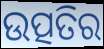
ଉତ୍ପତିର